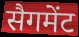
सैगमेंट